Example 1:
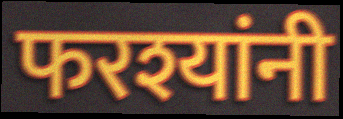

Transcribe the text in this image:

फरश्यांनी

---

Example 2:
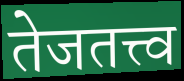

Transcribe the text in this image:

तेजतत्त्व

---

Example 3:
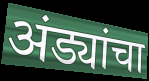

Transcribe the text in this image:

अंड्यांचा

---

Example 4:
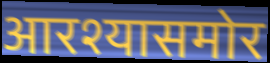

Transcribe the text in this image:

आरश्यासमोर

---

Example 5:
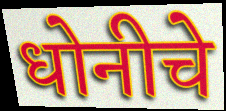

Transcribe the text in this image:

धोनीचे